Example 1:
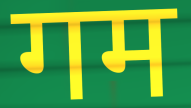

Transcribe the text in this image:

गम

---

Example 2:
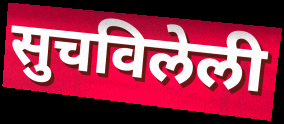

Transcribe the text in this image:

सुचविलेली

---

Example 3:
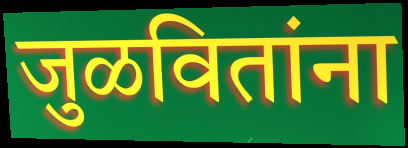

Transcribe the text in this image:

जुळवितांना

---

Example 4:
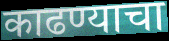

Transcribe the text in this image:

काढण्याचा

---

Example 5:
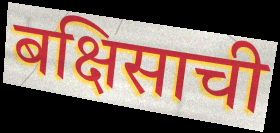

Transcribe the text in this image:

बक्षिसाची